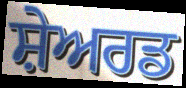
ਸ਼ੇਅਰਡ